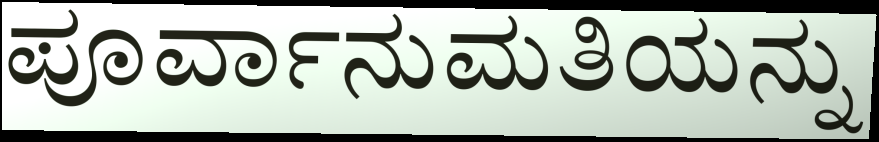
ಪೂರ್ವಾನುಮತಿಯನ್ನು